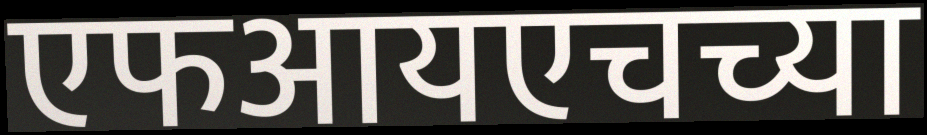
एफआयएचच्या